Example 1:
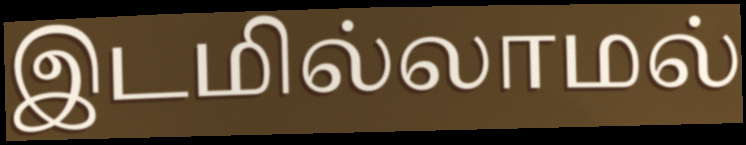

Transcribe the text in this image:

இடமில்லாமல்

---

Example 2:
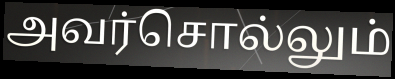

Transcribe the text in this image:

அவர்சொல்லும்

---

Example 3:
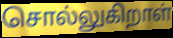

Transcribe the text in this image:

சொல்லுகிறாள்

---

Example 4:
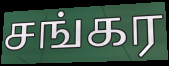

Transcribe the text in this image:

சங்கர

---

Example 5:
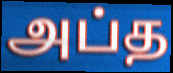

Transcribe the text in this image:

அப்த